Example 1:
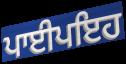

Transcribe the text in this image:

ਪਾਈਪਇਹ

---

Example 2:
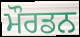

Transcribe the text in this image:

ਮੌਰਡਨ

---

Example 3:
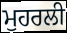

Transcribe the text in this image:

ਮੁਹਰਲੀ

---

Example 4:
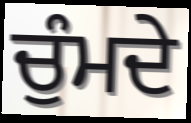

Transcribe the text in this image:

ਚੁੰਮਦੇ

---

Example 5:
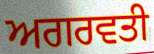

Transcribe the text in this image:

ਅਗਰਵਤੀ